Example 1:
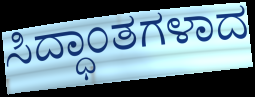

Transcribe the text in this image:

ಸಿದ್ಧಾಂತಗಳಾದ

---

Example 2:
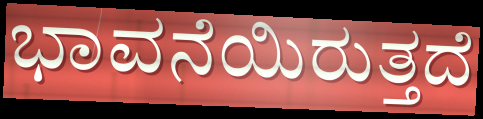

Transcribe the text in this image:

ಭಾವನೆಯಿರುತ್ತದೆ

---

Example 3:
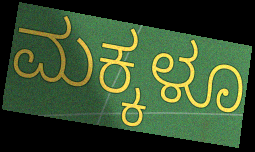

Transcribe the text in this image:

ಮಕ್ಕಳೂ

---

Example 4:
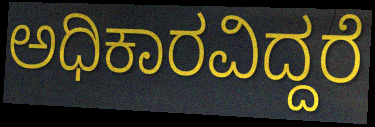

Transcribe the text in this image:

ಅಧಿಕಾರವಿದ್ದರೆ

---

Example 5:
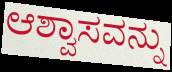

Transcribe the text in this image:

ಆಶ್ವಾಸವನ್ನು